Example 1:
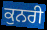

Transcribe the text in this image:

ਕੁਨਰੀ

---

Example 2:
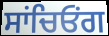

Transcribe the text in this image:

ਸਾਂਚਿਓਂਗ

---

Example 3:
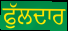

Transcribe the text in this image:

ਫੁੱਲਦਾਰ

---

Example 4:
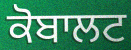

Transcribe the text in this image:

ਕੋਬਾਲਟ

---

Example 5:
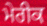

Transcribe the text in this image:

ਮੇਰੀਕ